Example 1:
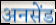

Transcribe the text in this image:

अनसेंड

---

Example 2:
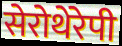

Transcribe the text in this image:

सेरोथेरेपी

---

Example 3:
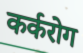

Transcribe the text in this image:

कर्करोग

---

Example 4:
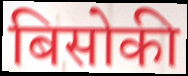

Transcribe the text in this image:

बिसोकी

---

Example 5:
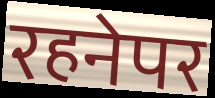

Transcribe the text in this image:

रहनेपर